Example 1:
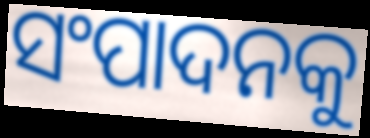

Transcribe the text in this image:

ସଂପାଦନକୁ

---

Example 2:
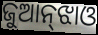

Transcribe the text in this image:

ଜୁଆନ୍‌ଝାଓ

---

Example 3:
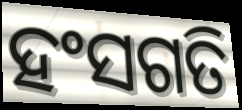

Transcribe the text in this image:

ହଂସଗତି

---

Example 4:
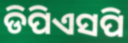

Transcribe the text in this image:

ଡିପିଏସପି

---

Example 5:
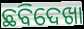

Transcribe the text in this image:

ଛବିଦେଖା